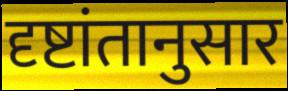
दृष्टांतानुसार